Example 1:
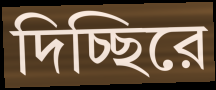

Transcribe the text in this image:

দিচ্ছিরে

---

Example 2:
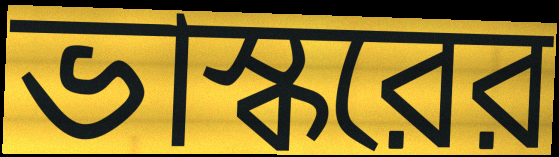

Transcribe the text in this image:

ভাস্করের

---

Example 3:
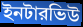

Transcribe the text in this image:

ইনটারভিউ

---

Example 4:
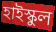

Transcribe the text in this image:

হাইস্কুল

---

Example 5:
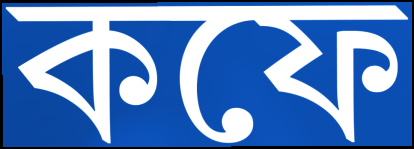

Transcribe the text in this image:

কফে